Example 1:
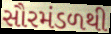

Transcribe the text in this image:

સૌરમંડળથી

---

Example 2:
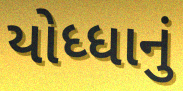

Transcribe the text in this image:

યોધ્ધાનું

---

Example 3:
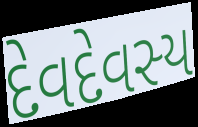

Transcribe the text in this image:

દેવદેવસ્ય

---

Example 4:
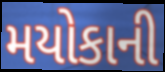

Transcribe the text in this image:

મયોકાની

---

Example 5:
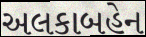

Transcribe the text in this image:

અલકાબહેન